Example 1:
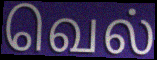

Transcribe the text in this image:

வெல்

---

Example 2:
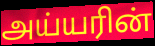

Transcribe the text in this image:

அய்யரின்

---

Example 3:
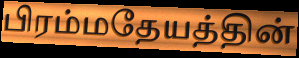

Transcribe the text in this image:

பிரம்மதேயத்தின்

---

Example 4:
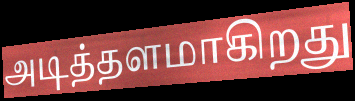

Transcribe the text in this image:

அடித்தளமாகிறது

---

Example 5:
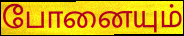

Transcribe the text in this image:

போனையும்